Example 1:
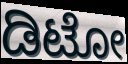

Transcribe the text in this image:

ಡಿಟೋ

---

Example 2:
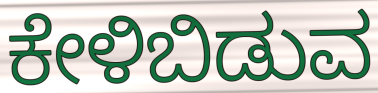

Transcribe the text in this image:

ಕೇಳಿಬಿಡುವ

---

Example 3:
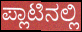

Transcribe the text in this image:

ಪ್ಲಾಟಿನಲ್ಲಿ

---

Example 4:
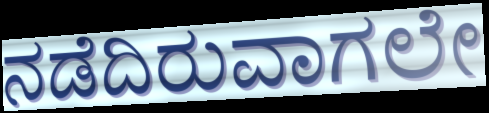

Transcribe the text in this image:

ನಡೆದಿರುವಾಗಲೇ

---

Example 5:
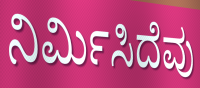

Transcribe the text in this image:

ನಿರ್ಮಿಸಿದೆವು